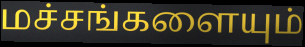
மச்சங்களையும்